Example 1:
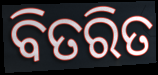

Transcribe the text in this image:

ବିତରିତ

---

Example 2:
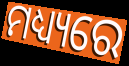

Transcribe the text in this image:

ମଧ୍ୟ୍ୟରେ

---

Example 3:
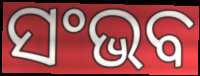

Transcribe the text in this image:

ସଂଭବ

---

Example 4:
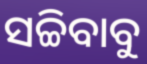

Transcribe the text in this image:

ସଚ୍ଚିବାବୁ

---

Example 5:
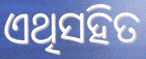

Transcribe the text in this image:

ଏଥିସହିତ